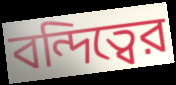
বন্দিত্বের